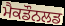
ਮੈਕਡੌਨਲਡ